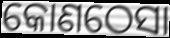
କୋଣଠେସା